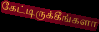
கேட்டிருக்கீங்களா